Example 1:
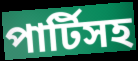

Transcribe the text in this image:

পার্টিসহ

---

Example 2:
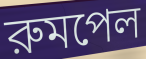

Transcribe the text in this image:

রুমপেল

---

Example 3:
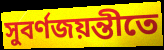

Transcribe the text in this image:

সুবর্ণজয়ন্তীতে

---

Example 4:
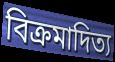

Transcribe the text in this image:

বিক্রমাদিত্য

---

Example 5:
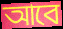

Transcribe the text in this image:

আবে